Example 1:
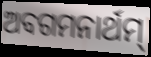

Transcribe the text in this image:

ଅବଗମନାର୍ଥମ୍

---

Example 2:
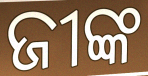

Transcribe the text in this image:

ଜୀଙ୍କ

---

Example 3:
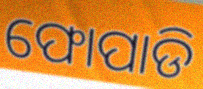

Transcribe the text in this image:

ଫୋପାଡି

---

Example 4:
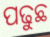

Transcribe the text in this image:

ପଢୁଛ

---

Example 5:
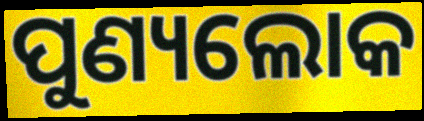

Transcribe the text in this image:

ପୁଣ୍ୟଲୋକ